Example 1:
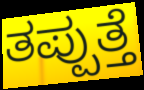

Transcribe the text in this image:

ತಪ್ಪುತ್ತೆ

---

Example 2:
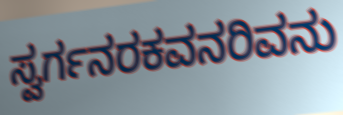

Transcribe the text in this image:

ಸ್ವರ್ಗನರಕವನರಿವನು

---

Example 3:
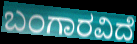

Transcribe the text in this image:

ಬಂಗಾರವಿದೆ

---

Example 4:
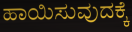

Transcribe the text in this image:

ಹಾಯಿಸುವುದಕ್ಕೆ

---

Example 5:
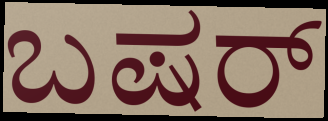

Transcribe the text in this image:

ಬಷರ್